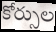
కోర్సుల